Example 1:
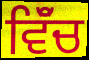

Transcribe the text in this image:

ਵਿੱੰਚ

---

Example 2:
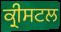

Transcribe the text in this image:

ਕ੍ਰੀਸਟਲ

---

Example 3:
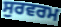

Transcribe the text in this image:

ਸੁਰਵਰਮ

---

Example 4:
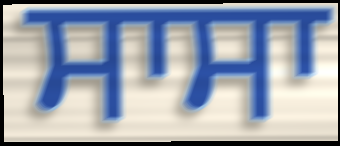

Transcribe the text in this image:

ਸਾਸਾ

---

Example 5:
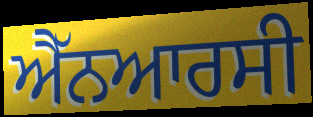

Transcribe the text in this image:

ਐੱਨਆਰਸੀ